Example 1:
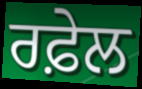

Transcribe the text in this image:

ਰਫ਼ੇਲ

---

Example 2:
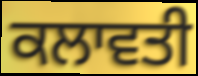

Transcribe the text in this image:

ਕਲਾਵਤੀ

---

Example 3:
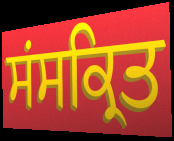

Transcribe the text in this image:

ਸਂਸਕ੍ਰਿਤ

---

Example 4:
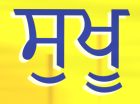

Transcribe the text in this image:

ਸੁਖੂ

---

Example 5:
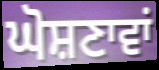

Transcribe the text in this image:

ਘੋਸ਼ਣਾਵਾਂ